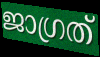
ജാഗ്രത്